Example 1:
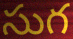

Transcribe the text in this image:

సుగ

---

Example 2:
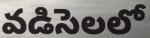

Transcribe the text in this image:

వడిసెలలో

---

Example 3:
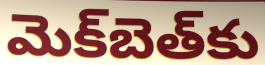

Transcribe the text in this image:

మెక్‌బెత్‌కు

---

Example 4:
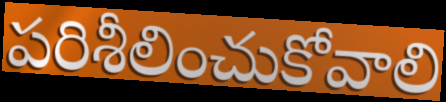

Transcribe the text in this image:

పరిశీలించుకోవాలి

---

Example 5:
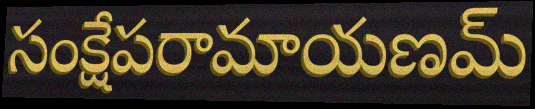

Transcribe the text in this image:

సంక్షేపరామాయణమ్